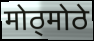
मोठ्मोठे